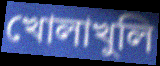
খোলাখুলি